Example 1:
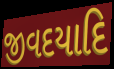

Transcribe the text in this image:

જીવદયાદિ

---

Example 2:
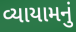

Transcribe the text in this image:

વ્યાયામનું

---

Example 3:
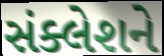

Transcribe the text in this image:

સંક્લેશને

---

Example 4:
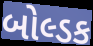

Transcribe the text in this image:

બોલ્ડક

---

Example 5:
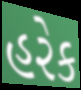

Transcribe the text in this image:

હરેક